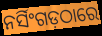
ନର୍ସିଂଗଡ଼ଠାରେ